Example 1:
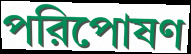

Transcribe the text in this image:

পরিপোষণ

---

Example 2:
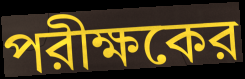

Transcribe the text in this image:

পরীক্ষকের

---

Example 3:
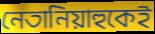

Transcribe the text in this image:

নেতানিয়াহুকেই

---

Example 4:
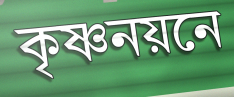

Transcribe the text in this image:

কৃষ্ণনয়নে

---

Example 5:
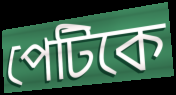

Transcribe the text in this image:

পেটিকে